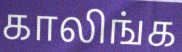
காலிங்க